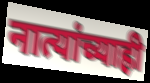
नात्यांच्याही